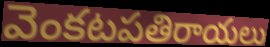
వెంకటపతిరాయలు